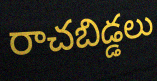
రాచబిడ్డలు